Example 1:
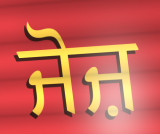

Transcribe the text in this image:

ਜੋਜ਼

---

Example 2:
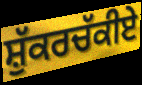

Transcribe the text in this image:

ਸ਼ੁੱਕਰਚੱਕੀਏ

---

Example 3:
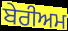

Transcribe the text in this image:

ਬੇਰੀਅਮ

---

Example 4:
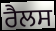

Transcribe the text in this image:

ਰੈਲਸ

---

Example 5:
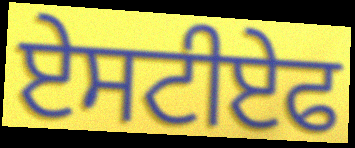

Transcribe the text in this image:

ਏਸਟੀਏਫ